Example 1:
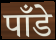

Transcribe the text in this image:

पाँडे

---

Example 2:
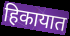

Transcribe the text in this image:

हिकायात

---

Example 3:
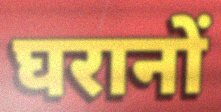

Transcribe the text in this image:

घरानों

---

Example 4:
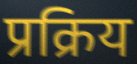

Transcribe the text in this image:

प्रक्रिय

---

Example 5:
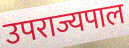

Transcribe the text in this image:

उपराज्यपाल